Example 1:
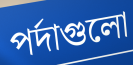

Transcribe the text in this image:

পর্দাগুলো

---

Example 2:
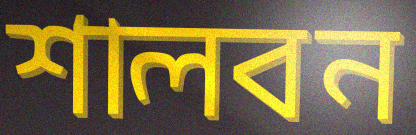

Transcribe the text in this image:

শালবন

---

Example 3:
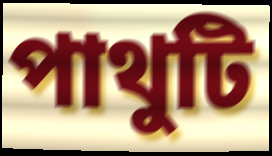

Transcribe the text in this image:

পাথুটি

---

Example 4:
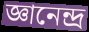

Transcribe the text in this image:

জ্ঞানেন্দ্র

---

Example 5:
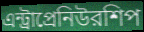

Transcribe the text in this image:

এন্ট্রাপ্রেনিউরশিপ